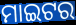
ମାଇଟର